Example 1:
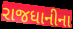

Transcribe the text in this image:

રાજધાનીના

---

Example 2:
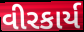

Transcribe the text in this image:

વીરકાર્ય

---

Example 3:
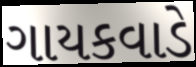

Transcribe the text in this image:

ગાયકવાડે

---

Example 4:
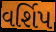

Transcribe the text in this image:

વર્શિપ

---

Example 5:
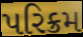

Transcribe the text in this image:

પરિક્રમ